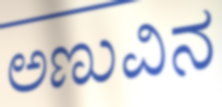
ಅಣುವಿನ